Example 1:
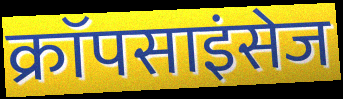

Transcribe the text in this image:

क्रॉपसाइंसेज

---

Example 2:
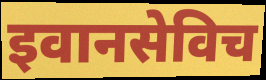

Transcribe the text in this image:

इवानसेविच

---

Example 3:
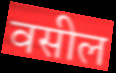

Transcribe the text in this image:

वसील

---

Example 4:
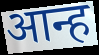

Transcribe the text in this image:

आन्ह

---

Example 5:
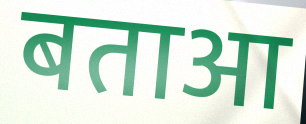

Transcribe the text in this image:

बताआ